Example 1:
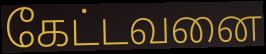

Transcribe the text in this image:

கேட்டவனை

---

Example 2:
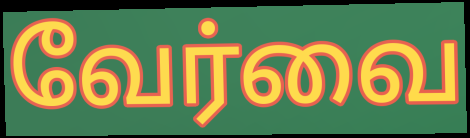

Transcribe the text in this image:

வேர்வை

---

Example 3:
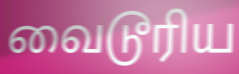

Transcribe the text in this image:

வைடூரிய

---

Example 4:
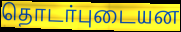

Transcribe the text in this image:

தொடர்புடையன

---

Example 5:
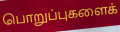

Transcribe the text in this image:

பொறுப்புகளைக்